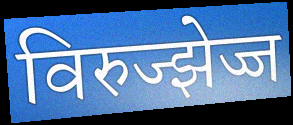
विरुज्झेज्ज